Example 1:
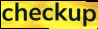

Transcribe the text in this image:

checkup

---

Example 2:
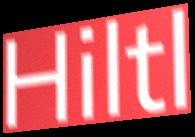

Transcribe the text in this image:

Hiltl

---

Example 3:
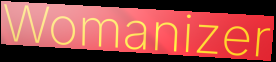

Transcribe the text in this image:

Womanizer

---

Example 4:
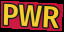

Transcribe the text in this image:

PWR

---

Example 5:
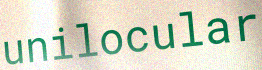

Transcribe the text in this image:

unilocular